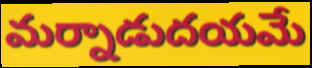
మర్నాడుదయమే